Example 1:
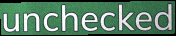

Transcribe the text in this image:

unchecked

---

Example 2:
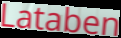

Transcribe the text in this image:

Lataben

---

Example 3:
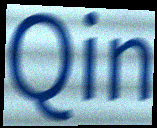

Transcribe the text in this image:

Qin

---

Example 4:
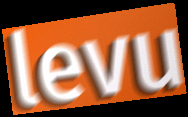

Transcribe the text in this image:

levu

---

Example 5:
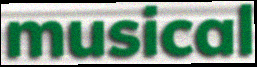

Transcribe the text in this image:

musical